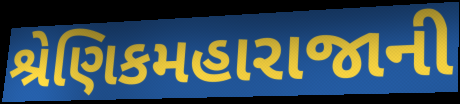
શ્રેણિકમહારાજાની